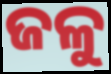
ଜଳୁ